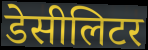
डेसीलिटर